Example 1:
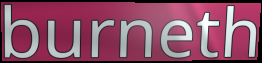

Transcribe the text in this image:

burneth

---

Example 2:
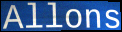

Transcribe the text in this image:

Allons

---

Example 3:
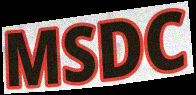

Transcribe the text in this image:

MSDC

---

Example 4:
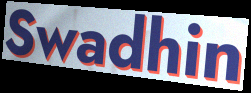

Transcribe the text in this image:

Swadhin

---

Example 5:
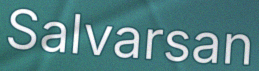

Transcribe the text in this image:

Salvarsan